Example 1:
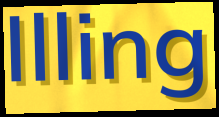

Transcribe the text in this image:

Illing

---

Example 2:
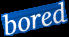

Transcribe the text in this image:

bored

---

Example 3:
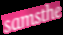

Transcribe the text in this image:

samsthe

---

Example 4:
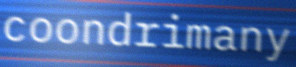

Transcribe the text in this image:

coondrimany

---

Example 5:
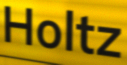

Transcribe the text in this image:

Holtz